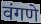
वंगणे